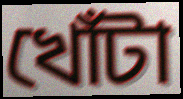
খোঁটা